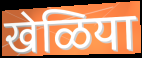
खेळिया